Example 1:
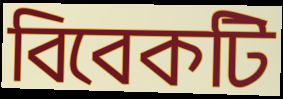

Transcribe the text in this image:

বিবেকটি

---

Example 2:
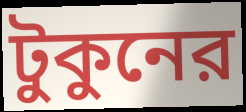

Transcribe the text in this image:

টুকুনের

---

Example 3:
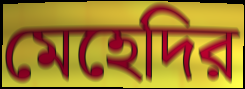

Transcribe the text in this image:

মেহেদির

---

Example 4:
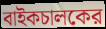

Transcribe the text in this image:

বাইকচালকের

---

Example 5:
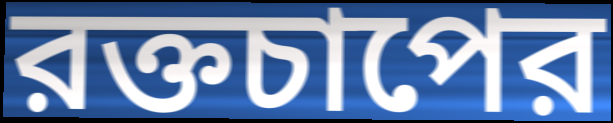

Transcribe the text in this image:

রক্তচাপের